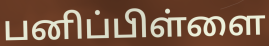
பனிப்பிள்ளை